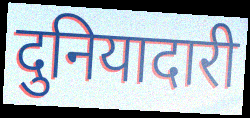
दुनियादारी